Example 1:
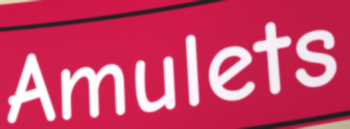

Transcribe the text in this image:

Amulets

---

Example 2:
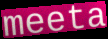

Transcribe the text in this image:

meeta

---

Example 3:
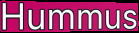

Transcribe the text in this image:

Hummus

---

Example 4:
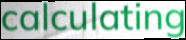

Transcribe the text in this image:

calculating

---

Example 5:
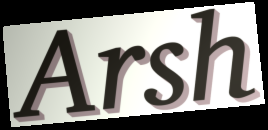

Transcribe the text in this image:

Arsh